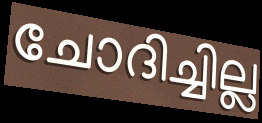
ചോദിച്ചില്ല